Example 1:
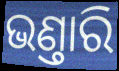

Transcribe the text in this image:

ଭଣ୍ତାରି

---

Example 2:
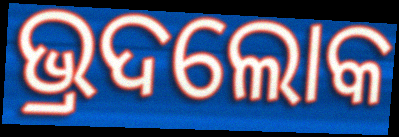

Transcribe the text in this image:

ଭ୍ରଦଲୋକ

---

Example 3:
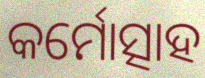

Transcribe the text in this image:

କର୍ମୋତ୍ସାହ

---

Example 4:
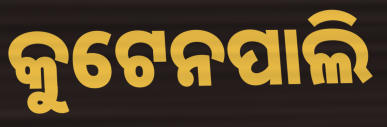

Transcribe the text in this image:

କୁଟେନପାଲି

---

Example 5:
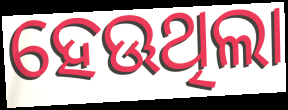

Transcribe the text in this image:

ହେଊଥିଲା